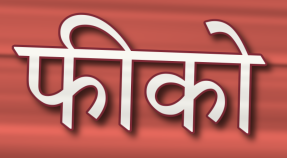
फीको